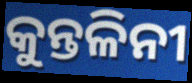
କୁନ୍ତଳିନୀ